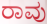
ರಾವು